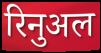
रिनुअल